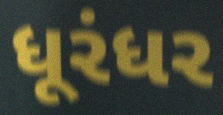
ધૂરંધર